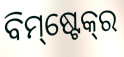
ବିମ୍‌ଷ୍ଟେକ୍‌ର